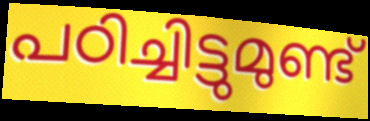
പഠിച്ചിട്ടുമുണ്ട്